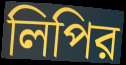
লিপির